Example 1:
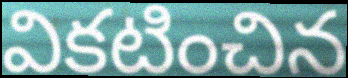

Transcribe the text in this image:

వికటించిన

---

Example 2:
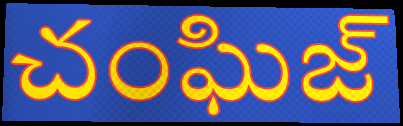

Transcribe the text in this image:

చంఘిజ్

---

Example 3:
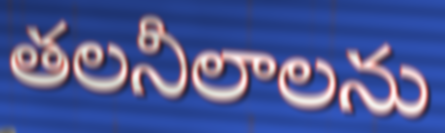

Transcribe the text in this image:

తలనీలాలను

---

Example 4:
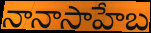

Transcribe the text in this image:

నానాసాహేబ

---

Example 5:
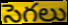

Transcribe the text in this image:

సెగలు